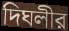
দিঘলীর